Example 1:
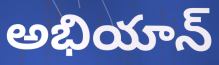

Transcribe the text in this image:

అభియాన్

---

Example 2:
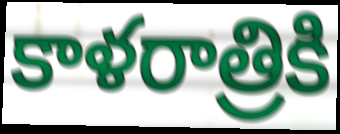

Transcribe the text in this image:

కాళరాత్రికి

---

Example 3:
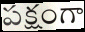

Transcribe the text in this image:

పక్షంగా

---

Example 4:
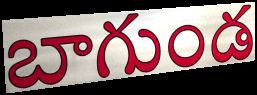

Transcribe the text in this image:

బాగుండ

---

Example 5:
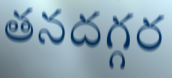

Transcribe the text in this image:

తనదగ్గర